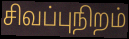
சிவப்புநிறம்